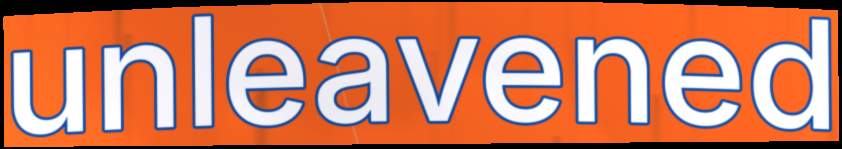
unleavened